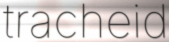
tracheid